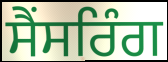
ਸੈਂਸਰਿੰਗ